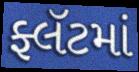
ફ્લૅટમાં